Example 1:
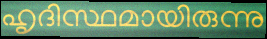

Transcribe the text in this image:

ഹൃദിസ്ഥമായിരുന്നു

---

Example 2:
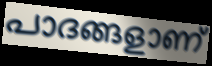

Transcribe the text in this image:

പാദങ്ങളാണ്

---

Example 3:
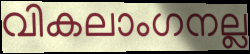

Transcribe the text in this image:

വികലാംഗനല്ല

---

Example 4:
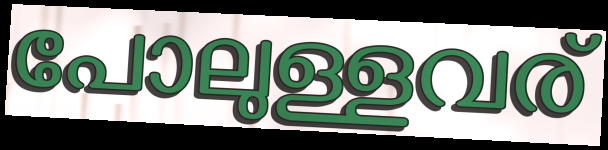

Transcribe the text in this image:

പോലുള്ളവര്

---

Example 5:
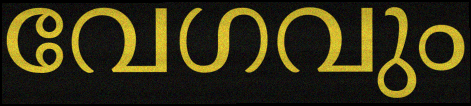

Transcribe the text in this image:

വേഗവും